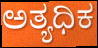
ಅತ್ಯಧಿಕ